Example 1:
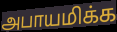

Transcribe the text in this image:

அபாயமிக்க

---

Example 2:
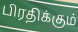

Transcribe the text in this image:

பிரதிக்கும்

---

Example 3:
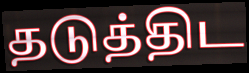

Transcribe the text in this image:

தடுத்திட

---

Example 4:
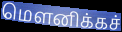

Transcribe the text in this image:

மௌனிக்கச்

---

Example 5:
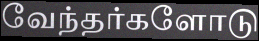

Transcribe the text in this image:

வேந்தர்களோடு